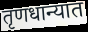
तृणधान्यात